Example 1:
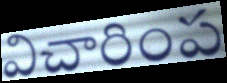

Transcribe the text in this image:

విచారింప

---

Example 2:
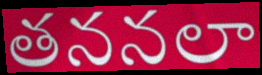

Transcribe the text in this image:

తననలా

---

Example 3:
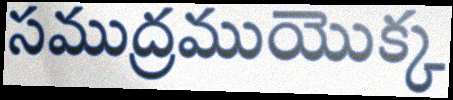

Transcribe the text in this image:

సముద్రముయొక్క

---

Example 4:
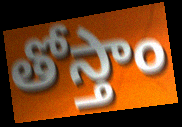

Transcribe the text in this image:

తోస్తాం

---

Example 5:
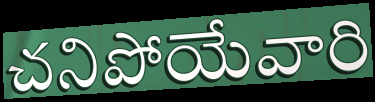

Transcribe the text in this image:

చనిపోయేవారి